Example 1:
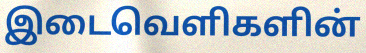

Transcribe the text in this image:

இடைவெளிகளின்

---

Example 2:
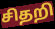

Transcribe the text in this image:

சிதறி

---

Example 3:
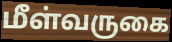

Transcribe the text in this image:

மீள்வருகை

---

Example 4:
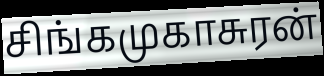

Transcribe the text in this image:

சிங்கமுகாசுரன்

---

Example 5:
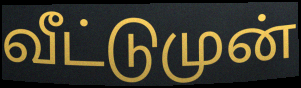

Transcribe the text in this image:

வீட்டுமுன்